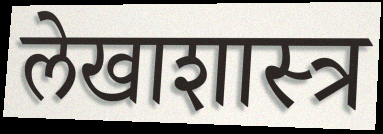
लेखाशास्त्र